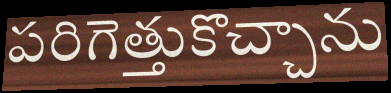
పరిగెత్తుకొచ్చాను